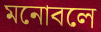
মনোবলে